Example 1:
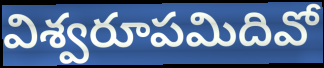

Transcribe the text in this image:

విశ్వరూపమిదివో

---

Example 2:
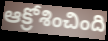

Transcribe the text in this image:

ఆక్రోశించింది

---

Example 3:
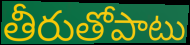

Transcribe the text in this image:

తీరుతోపాటు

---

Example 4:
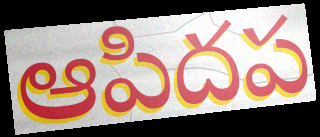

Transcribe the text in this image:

ఆపిదప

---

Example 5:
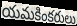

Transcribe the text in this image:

యమకింకరులు